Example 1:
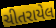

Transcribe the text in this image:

ચીતરાયેલ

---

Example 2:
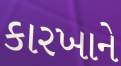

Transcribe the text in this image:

કારખાને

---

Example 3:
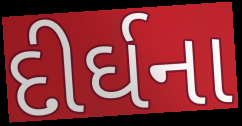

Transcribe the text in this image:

દીર્ઘના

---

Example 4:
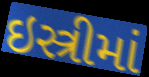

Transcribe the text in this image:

ઇસ્ત્રીમાં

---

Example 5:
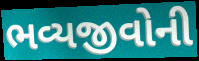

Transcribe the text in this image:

ભવ્યજીવોની